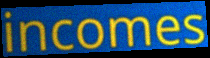
incomes